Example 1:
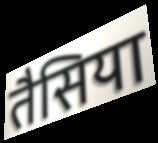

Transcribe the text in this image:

तैसिया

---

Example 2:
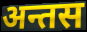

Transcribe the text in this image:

अन्तस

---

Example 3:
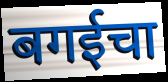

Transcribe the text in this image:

बगईचा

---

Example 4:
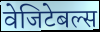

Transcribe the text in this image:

वेजिटेबल्स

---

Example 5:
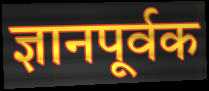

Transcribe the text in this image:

ज्ञानपूर्वक